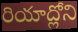
రియాద్లోని